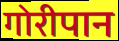
गोरीपान